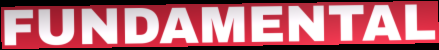
FUNDAMENTAL